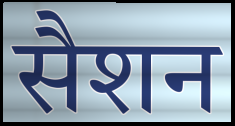
सैशन